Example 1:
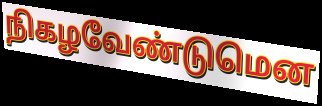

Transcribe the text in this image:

நிகழவேண்டுமென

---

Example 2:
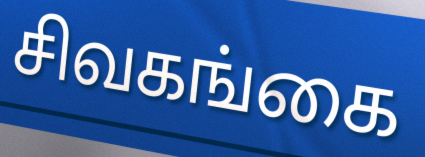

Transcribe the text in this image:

சிவகங்கை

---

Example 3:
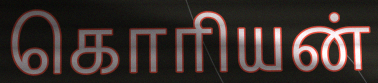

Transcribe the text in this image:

கொரியன்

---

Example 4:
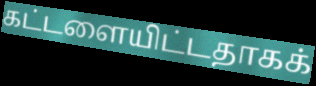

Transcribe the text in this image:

கட்டளையிட்டதாகக்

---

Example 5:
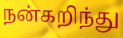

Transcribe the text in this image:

நன்கறிந்து